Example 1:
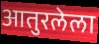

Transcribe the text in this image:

आतुरलेला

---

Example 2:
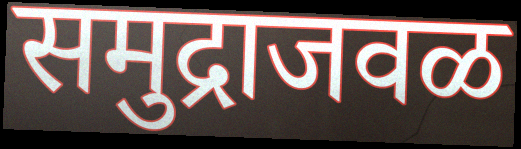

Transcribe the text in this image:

समुद्राजवळ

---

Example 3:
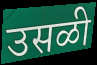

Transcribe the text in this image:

उसळी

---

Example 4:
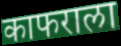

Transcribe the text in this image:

काफराला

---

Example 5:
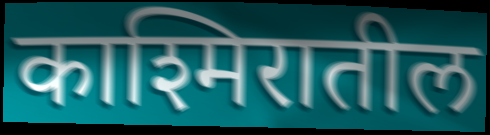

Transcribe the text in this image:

काश्मिरातील